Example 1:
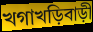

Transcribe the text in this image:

খগাখড়িবাড়ী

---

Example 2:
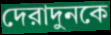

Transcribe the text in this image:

দেরাদুনকে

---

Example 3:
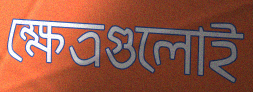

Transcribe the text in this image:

ক্ষেত্রগুলোই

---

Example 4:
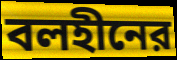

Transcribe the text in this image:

বলহীনের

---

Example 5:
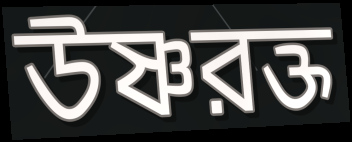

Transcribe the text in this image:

উষ্ণরক্ত